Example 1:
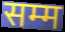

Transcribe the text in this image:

सम्म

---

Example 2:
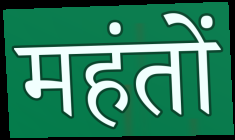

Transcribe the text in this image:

महंतों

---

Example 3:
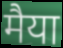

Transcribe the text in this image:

मैया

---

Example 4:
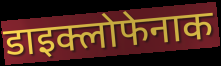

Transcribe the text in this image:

डाइक्लोफेनाक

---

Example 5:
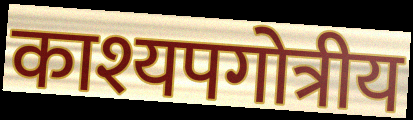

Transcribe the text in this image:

काश्यपगोत्रीय